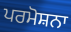
ਪਰਮੋਸ਼ਨਾ